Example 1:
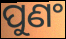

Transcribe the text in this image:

ପୁଣଂ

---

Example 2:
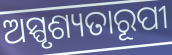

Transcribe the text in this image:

ଅସ୍ପୃଶ୍ୟତାରୂପୀ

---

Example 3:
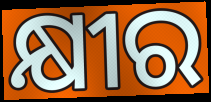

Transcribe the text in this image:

କ୍ଷୀର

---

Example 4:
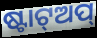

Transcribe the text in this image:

ଷ୍ଟାଟ୍ଅପ୍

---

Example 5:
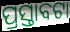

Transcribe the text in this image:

ପ୍ରସ୍ତାବଟା